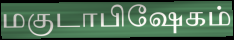
மகுடாபிஷேகம்